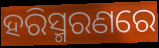
ହରିସ୍ମରଣରେ